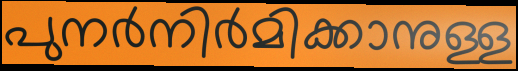
പുനർനിർമിക്കാനുള്ള